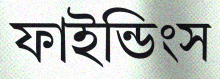
ফাইন্ডিংস